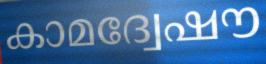
കാമദ്വേഷൗ